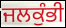
ਜਲਕੁੰਭੀ